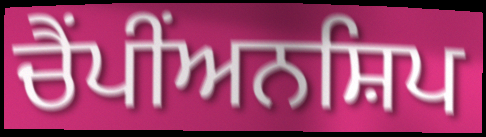
ਚੈਂਪੀਂਅਨਸ਼ਿਪ